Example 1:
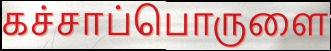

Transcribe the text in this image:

கச்சாப்பொருளை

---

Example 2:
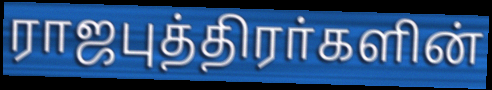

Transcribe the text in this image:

ராஜபுத்திரர்களின்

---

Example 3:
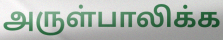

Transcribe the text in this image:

அருள்பாலிக்க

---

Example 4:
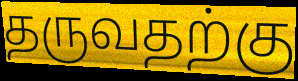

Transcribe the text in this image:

தருவதற்கு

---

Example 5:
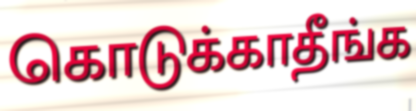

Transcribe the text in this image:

கொடுக்காதீங்க